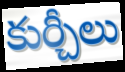
కుర్చీలు